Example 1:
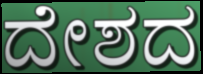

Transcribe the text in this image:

ದೇಶದ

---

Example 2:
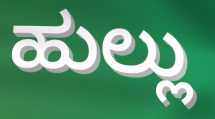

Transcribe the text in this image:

ಹುಲ್ಲು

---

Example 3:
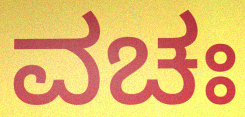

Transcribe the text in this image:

ವಚಃ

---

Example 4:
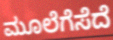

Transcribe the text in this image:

ಮೂಲೆಗೆಸೆದೆ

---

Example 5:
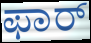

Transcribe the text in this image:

ಫಾರ್